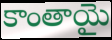
కాంతాయై